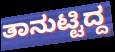
ತಾನುಟ್ಟಿದ್ದ